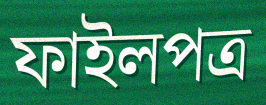
ফাইলপত্র